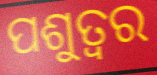
ପଶୁତ୍ୱର